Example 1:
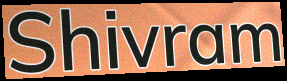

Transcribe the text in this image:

Shivram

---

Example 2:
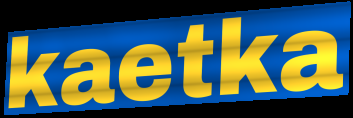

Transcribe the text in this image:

kaetka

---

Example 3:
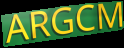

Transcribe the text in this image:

ARGCM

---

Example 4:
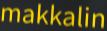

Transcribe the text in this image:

makkalin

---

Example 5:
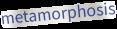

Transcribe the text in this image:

metamorphosis